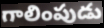
గాలింపుడు